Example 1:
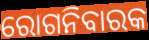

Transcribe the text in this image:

ରୋଗନିବାରକ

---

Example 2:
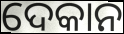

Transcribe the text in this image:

ଦେକାନ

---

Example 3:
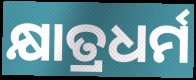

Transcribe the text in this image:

କ୍ଷାତ୍ରଧର୍ମ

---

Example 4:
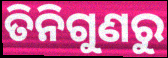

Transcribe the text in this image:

ତିନିଗୁଣରୁ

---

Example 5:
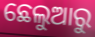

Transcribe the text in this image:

ଛେଲୁଆରୁ